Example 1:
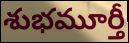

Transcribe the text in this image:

శుభమూర్తీ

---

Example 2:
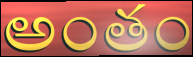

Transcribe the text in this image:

అంతం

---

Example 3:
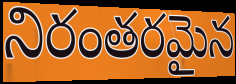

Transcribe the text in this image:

నిరంతరమైన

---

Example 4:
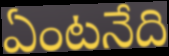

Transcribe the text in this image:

ఏంటనేది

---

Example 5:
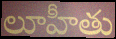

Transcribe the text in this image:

లూహీతు